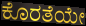
ಕೊರತೆಯೇ